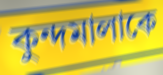
কুন্দমালাকে